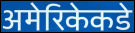
अमेरिकेकडे